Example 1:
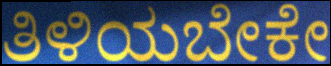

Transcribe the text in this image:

ತಿಳಿಯಬೇಕೇ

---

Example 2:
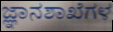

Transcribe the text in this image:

ಜ್ಞಾನಶಾಖೆಗಳ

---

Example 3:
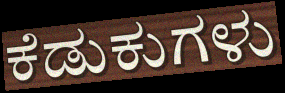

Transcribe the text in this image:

ಕೆಡುಕುಗಳು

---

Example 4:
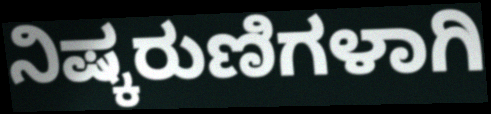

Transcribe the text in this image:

ನಿಷ್ಕರುಣಿಗಳಾಗಿ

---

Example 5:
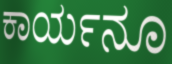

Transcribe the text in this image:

ಕಾರ್ಯನೂ